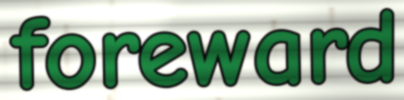
foreward